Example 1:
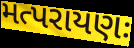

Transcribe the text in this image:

મત્પરાયણઃ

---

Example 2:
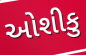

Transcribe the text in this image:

ઓશીકુ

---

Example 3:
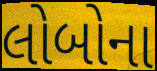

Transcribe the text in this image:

લોબોના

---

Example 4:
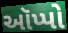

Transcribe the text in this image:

ઑપ્પો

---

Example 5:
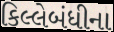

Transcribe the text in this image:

કિલ્લેબંધીના